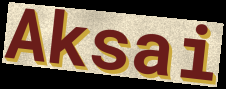
Aksai